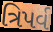
ત્રિપર્વ